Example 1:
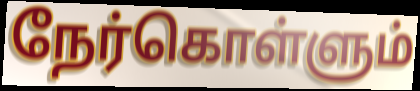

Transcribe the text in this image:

நேர்கொள்ளும்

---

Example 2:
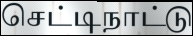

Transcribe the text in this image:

செட்டிநாட்டு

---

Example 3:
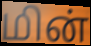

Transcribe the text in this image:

மின்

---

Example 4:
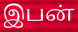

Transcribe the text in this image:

இபன்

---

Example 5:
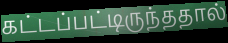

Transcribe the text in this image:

கட்டப்பட்டிருந்ததால்